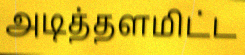
அடித்தளமிட்ட